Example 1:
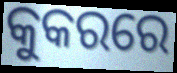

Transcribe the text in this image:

କୁକରରେ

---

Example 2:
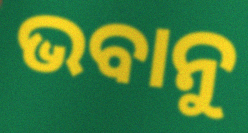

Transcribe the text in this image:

ଭବାନୁ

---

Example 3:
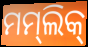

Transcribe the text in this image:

ମମ୍‌ଲିକ୍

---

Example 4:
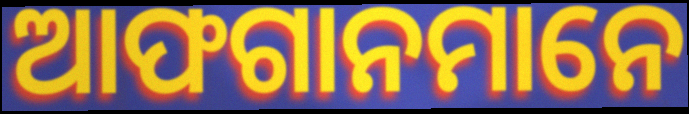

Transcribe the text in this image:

ଆଫଗାନମାନେ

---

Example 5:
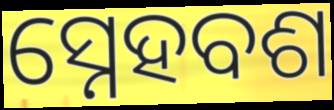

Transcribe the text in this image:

ସ୍ନେହବଶ